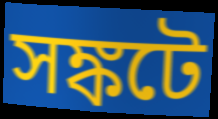
সঙ্কটে